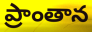
ప్రాంతాన